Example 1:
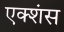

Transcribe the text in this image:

एक्शंस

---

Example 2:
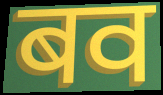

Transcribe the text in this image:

बव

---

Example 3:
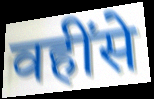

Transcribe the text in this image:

वहींसे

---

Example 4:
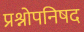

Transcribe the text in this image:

प्रश्नोपनिषद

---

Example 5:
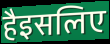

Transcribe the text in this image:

हैइसलिए